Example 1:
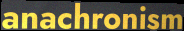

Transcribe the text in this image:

anachronism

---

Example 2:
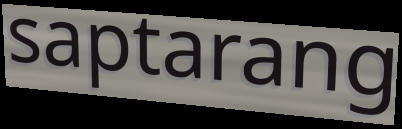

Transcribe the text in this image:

saptarang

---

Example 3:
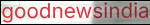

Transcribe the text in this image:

goodnewsindia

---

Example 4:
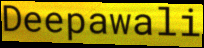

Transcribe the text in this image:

Deepawali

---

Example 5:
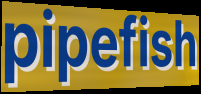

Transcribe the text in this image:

pipefish